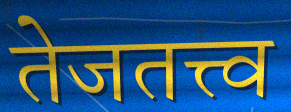
तेजतत्त्व